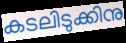
കടലിടുക്കിനു